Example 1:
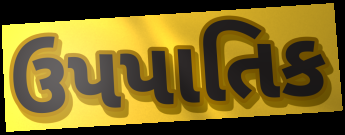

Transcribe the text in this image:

ઉપપાતિક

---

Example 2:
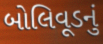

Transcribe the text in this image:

બોલિવૂડનું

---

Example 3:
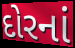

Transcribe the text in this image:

દોરનાં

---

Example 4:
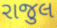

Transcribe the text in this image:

રાજુલ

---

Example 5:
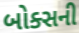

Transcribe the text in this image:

બોક્સની